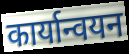
कार्यान्वयन